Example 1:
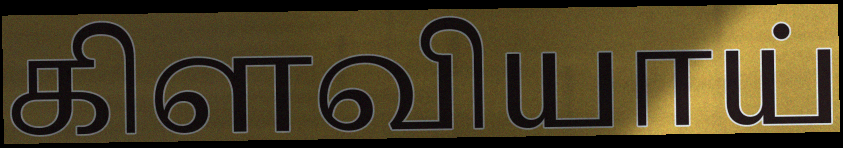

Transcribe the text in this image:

கிளவியாய்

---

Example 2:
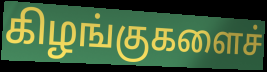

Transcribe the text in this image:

கிழங்குகளைச்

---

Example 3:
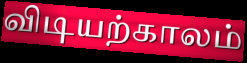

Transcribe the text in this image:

விடியற்காலம்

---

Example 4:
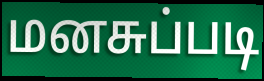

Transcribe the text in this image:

மனசுப்படி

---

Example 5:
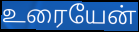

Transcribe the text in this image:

உரையேன்